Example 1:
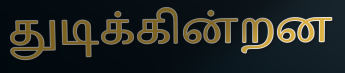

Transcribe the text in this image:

துடிக்கின்றன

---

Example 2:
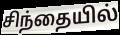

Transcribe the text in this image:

சிந்தையில்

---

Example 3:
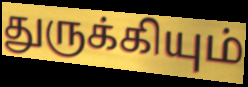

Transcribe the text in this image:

துருக்கியும்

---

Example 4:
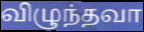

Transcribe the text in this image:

விழுந்தவா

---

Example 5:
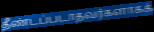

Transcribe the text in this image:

தீண்டப்படாதவர்களாகக்